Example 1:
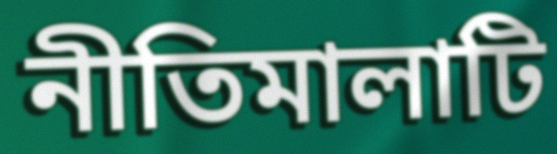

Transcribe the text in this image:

নীতিমালাটি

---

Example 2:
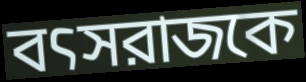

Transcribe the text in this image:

বৎসরাজকে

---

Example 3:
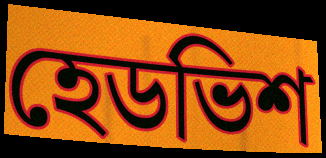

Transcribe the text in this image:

হেডভিশ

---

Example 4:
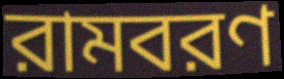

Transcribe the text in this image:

রামবরণ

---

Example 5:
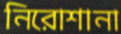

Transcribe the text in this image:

নিরোশানা